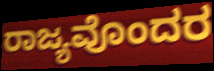
ರಾಜ್ಯವೊಂದರ